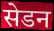
सेडन